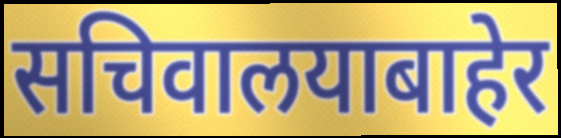
सचिवालयाबाहेर